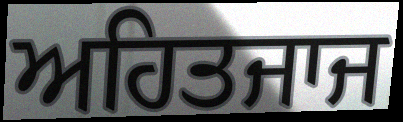
ਅਹਿਤਜਾਜ